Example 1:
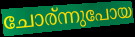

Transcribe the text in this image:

ചോര്ന്നുപോയ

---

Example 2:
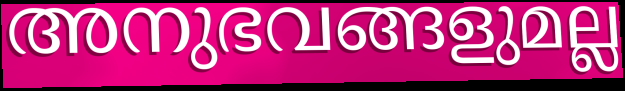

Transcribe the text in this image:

അനുഭവങ്ങളുമല്ല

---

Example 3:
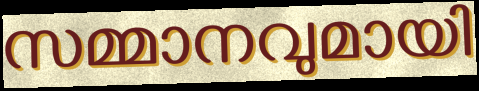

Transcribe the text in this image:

സമ്മാനവുമായി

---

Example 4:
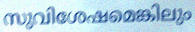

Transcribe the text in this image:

സുവിശേഷമെങ്കിലും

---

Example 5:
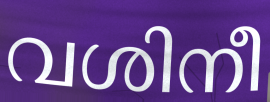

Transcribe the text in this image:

വശിനീ